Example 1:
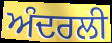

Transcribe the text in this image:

ਅੰਦਰਲੀ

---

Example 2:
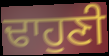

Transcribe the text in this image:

ਢਾਹੁਣੀ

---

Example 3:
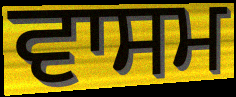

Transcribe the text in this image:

ਵਾਸਮ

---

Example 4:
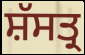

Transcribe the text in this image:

ਸ਼ੱਸਤ੍ਰ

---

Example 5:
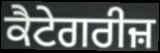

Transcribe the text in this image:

ਕੈਟੇਗਰੀਜ਼